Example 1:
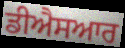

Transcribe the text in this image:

ਡੀਐਸਆਰ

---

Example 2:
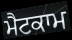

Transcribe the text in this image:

ਮੈਟਕਾਮ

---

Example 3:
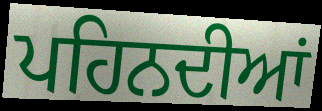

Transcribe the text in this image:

ਪਹਿਨਦੀਆਂ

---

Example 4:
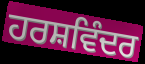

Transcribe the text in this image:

ਹਰਸ਼ਵਿੰਦਰ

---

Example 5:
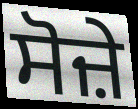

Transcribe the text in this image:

ਸੋਜ਼ੇ